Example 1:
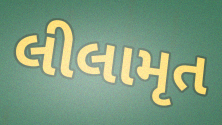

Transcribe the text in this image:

લીલામૃત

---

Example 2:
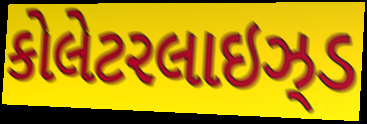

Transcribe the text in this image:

કોલેટરલાઇઝ્ડ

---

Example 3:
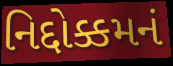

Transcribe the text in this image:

નિદ્દોક્કમનં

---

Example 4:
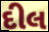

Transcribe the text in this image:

દીલ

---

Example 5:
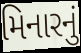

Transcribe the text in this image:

મિનારનું